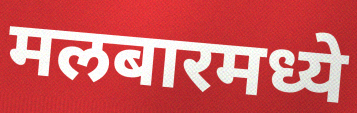
मलबारमध्ये